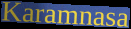
Karamnasa